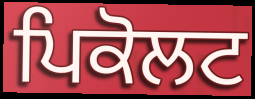
ਪਿਕੋਲਟ